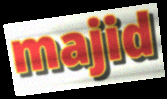
majid